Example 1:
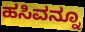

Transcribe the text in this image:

ಹಸಿವನ್ನೂ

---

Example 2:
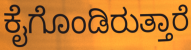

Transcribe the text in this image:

ಕೈಗೊಂಡಿರುತ್ತಾರೆ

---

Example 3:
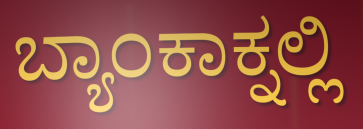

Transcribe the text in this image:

ಬ್ಯಾಂಕಾಕ್ನಲ್ಲಿ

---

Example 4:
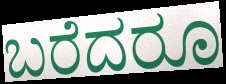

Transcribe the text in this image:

ಬರೆದರೂ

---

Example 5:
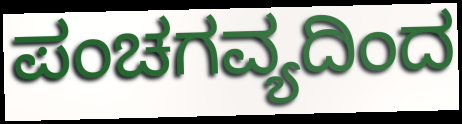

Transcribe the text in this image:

ಪಂಚಗವ್ಯದಿಂದ